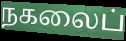
நகலைப்